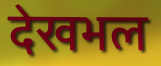
देखभल